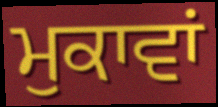
ਮੁਕਾਵਾਂ